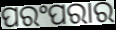
ପରଂପରାର